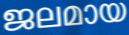
ജലമായ